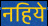
नहिये